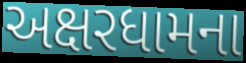
અક્ષરધામના